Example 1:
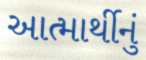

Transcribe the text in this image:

આત્માર્થીનું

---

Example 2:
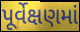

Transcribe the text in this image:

પૂર્વેક્ષણમાં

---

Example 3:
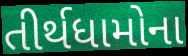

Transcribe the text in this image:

તીર્થધામોના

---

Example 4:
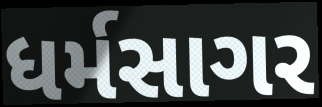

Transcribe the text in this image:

ધર્મસાગર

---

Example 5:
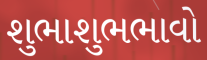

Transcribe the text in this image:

શુભાશુભભાવો